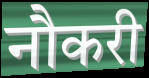
नौकरी